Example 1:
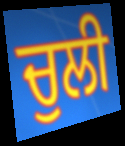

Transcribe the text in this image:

ਚੁਲੀ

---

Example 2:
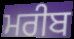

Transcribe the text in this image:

ਮਰੀਬ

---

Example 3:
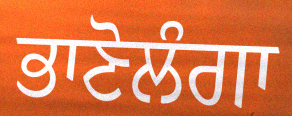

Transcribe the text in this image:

ਭਾਣੋਲੰਗਾ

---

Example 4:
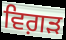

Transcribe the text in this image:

ਵਿਗ਼ੜ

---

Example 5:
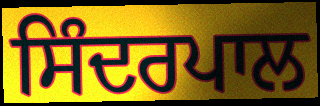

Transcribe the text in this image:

ਸਿੰਦਰਪਾਲ